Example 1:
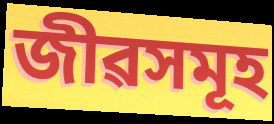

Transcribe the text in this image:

জীৱসমূহ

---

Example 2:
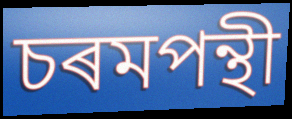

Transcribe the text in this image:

চৰমপন্থী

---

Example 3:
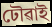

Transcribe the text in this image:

ঢৌৱাই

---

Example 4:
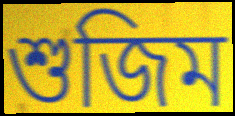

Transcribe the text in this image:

শুজিম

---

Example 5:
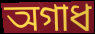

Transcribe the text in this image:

অগাধ